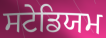
ਸਟੇਡਿਯਮ